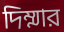
দিম্মার